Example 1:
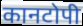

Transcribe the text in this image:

कानटोपी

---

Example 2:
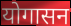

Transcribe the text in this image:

योगासन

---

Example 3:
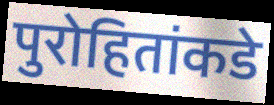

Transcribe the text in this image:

पुरोहितांकडे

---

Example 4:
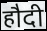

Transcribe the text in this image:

हौदी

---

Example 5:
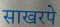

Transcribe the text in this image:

साखरपे